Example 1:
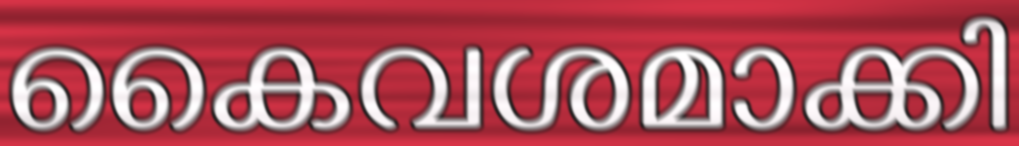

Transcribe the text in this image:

കൈവശമാക്കി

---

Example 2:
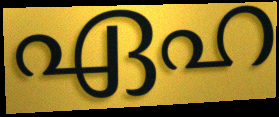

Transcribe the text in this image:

ഏഹ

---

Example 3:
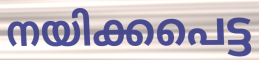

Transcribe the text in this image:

നയിക്കപെട്ട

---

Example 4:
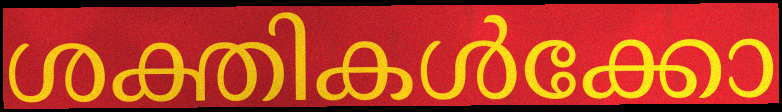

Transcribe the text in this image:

ശക്തികൾക്കോ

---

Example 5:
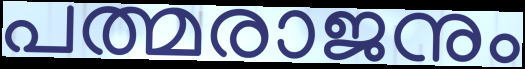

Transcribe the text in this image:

പത്മരാജനും